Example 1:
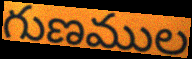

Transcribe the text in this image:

గుణముల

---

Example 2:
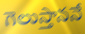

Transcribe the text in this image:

గెలుస్తాననే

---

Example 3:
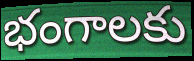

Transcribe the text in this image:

భంగాలకు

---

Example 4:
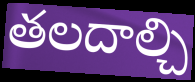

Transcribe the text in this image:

తలదాల్చి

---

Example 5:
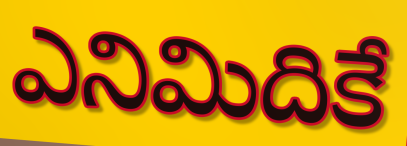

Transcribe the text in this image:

ఎనిమిదికే